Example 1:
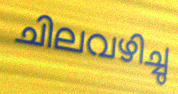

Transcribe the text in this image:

ചിലവഴിച്ചു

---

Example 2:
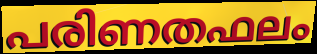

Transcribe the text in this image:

പരിണതഫലം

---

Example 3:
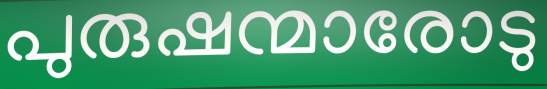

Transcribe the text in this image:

പുരുഷന്മാരോടു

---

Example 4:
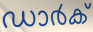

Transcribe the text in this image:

ഡാർക്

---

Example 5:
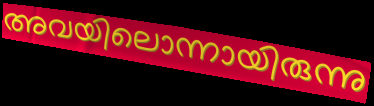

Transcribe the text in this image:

അവയിലൊന്നായിരുന്നു